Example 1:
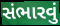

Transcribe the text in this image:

સંભારવું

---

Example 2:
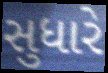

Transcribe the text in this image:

સુધારે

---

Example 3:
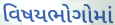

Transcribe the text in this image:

વિષયભોગોમાં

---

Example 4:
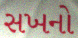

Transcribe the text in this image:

સખનો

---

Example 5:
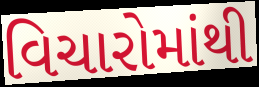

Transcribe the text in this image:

વિચારોમાંથી